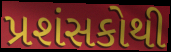
પ્રશંસકોથી